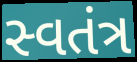
સ્વતંત્ર